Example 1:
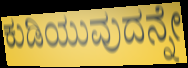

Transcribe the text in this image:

ಕುಡಿಯುವುದನ್ನೇ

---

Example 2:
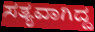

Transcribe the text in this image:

ಸತ್ಯವಾಗಿದ್ದ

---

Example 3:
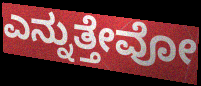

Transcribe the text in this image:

ಎನ್ನುತ್ತೇವೋ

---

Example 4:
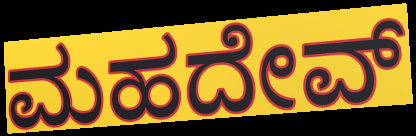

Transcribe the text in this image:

ಮಹದೇವ್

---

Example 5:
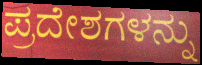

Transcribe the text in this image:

ಪ್ರದೇಶಗಳನ್ನು